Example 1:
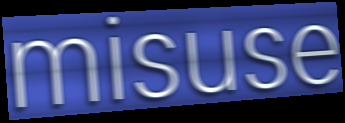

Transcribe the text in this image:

misuse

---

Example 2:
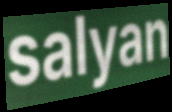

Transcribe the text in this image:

salyan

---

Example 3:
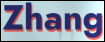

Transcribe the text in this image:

Zhang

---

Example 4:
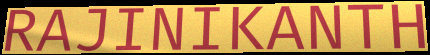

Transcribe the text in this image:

RAJINIKANTH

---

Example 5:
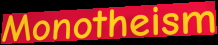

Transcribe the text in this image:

Monotheism